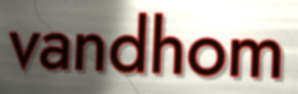
vandhom